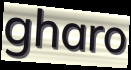
gharo